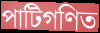
পাটিগণিত